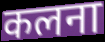
कलना